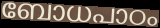
ബോധപാഠം